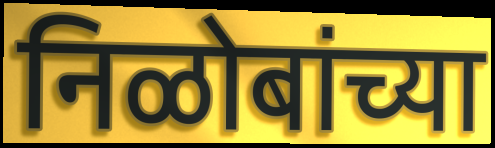
निळोबांच्या